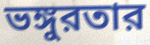
ভঙ্গুরতার